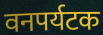
वनपर्यटक